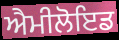
ਐਮੀਲੋਇਡ